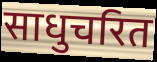
साधुचरित